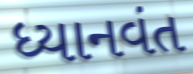
ધ્યાનવંત